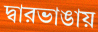
দ্বারভাঙায়